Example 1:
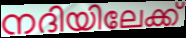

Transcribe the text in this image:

നദിയിലേക്ക്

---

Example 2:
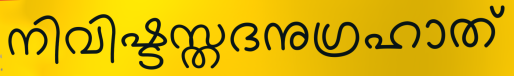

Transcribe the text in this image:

നിവിഷ്ടസ്തദനുഗ്രഹാത്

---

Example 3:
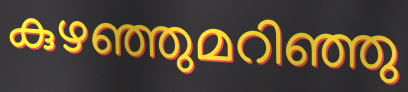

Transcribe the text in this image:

കുഴഞ്ഞുമറിഞ്ഞു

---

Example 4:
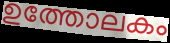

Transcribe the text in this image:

ഉത്തോലകം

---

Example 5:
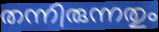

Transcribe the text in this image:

തന്നിരുന്നതും